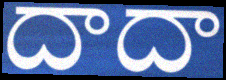
దాదా